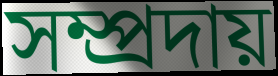
সম্প্রদায়